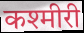
कश्‍मीरी